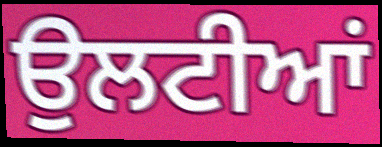
ਉਲਟੀਆਂ